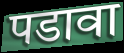
पडावा